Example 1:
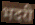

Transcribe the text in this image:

भदरी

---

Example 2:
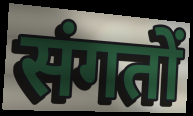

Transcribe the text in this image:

संगतों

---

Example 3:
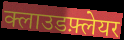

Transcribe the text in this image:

क्लाउडफ़्लेयर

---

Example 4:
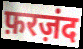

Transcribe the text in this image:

फ़रज़ंद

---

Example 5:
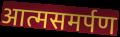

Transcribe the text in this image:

आत्मसमर्पण